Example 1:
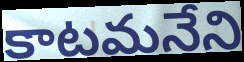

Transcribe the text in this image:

కాటమనేని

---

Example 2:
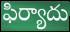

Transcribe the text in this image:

ఫిర్యాదు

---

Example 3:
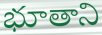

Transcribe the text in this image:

భూతాని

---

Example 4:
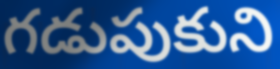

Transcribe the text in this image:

గడుపుకుని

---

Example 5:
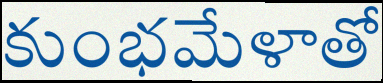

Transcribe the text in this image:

కుంభమేళాతో